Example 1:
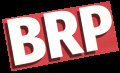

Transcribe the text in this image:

BRP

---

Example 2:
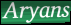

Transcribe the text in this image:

Aryans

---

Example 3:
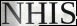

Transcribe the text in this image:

NHIS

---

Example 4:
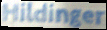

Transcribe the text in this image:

Hildinger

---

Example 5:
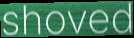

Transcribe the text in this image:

shoved